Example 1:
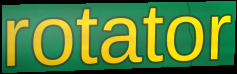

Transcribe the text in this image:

rotator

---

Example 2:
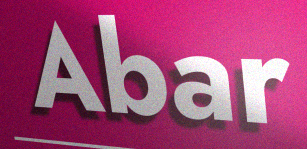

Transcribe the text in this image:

Abar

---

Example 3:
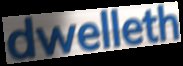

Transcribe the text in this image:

dwelleth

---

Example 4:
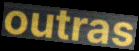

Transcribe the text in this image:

outras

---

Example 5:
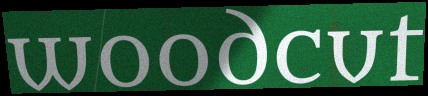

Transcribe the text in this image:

woodcut